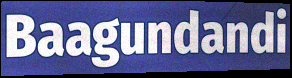
Baagundandi